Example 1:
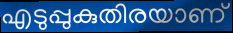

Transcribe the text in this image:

എടുപ്പുകുതിരയാണ്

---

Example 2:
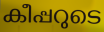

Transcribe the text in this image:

കീപ്പറുടെ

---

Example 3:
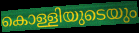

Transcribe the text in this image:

കൊള്ളിയുടെയും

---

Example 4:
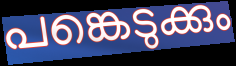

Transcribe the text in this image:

പങ്കെടുക്കും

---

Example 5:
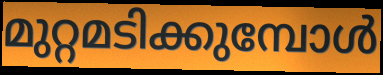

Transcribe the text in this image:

മുറ്റമടിക്കുമ്പോൾ